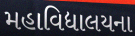
મહાવિદ્યાલયના